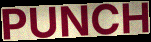
PUNCH